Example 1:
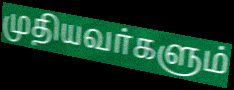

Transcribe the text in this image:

முதியவர்களும்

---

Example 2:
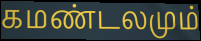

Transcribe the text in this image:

கமண்டலமும்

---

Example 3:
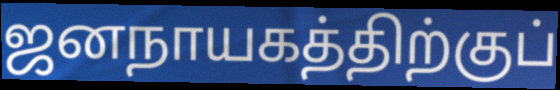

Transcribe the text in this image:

ஜனநாயகத்திற்குப்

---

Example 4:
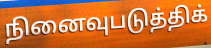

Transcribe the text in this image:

நினைவுபடுத்திக்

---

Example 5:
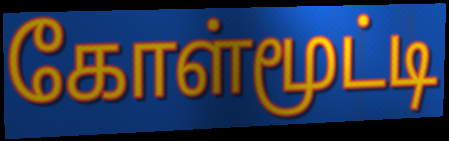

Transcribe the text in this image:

கோள்மூட்டி